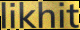
likhit